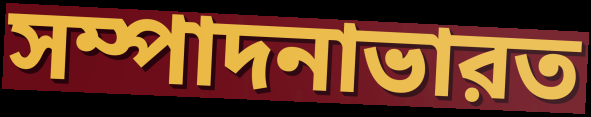
সম্পাদনাভারত